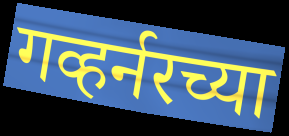
गव्हर्नरच्या